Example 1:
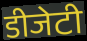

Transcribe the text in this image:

डीजेटी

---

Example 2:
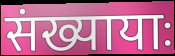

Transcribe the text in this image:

संख्यायाः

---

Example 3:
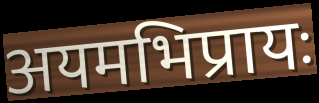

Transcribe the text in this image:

अयमभिप्रायः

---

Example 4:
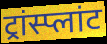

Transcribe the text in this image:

ट्रांस्प्लांट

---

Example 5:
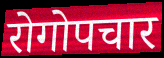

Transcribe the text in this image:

रोगोपचार